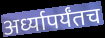
अर्ध्यापर्यंतच